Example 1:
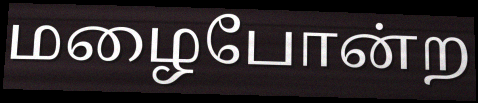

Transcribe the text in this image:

மழைபோன்ற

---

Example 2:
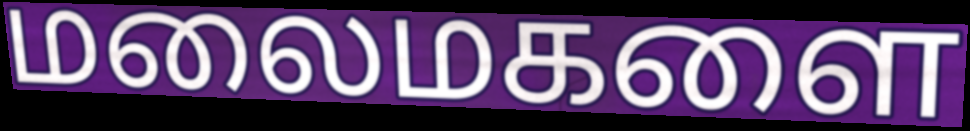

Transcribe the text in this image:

மலைமகளை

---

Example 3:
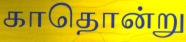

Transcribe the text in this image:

காதொன்று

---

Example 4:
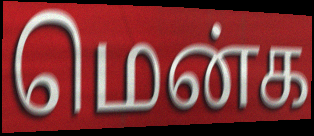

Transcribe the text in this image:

மென்க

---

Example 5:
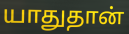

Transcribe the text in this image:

யாதுதான்